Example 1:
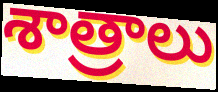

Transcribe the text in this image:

శాత్రాలు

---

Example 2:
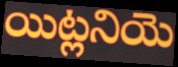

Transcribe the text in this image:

యిట్లనియె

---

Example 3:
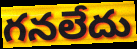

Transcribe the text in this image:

గనలేదు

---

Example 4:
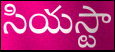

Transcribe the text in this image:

సియస్టా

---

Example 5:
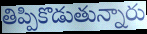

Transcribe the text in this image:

తిప్పికొడుతున్నారు